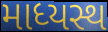
માધ્યસ્થ